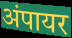
अंपायर